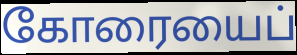
கோரையைப்